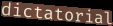
dictatorial